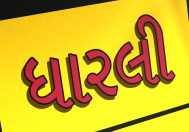
ધારલી